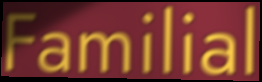
Familial